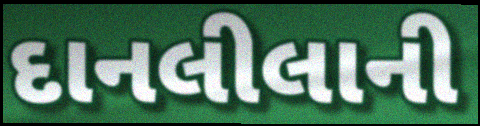
દાનલીલાની